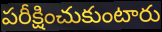
పరీక్షించుకుంటారు